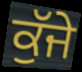
ਕੁੱਜੇ